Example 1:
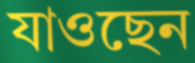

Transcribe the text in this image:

যাওছেন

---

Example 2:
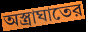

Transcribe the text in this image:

অস্ত্রাঘাতের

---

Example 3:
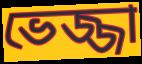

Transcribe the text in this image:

ভেজ্জা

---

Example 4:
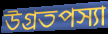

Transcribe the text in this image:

উগ্রতপস্যা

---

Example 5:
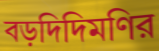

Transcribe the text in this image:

বড়দিদিমণির